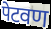
पेटवण